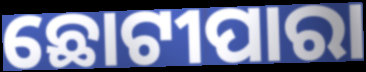
ଛୋଟୀପାରା